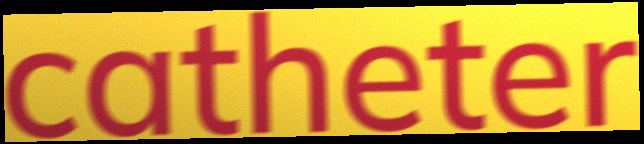
catheter